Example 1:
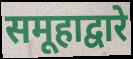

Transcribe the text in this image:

समूहाद्वारे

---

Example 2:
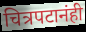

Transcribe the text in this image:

चित्रपटानंही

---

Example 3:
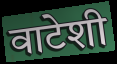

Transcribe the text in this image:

वाटेशी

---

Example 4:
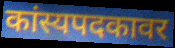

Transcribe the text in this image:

कांस्यपदकावर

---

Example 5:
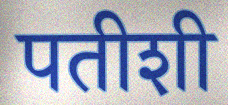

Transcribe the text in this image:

पतीशी